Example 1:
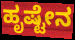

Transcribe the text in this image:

ಹೃಷ್ಟೇನ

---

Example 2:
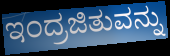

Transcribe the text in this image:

ಇಂದ್ರಜಿತುವನ್ನು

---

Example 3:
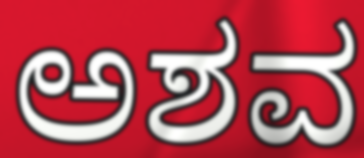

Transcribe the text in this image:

ಅಶವ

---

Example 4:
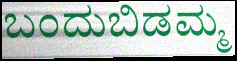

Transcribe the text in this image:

ಬಂದುಬಿಡಮ್ಮ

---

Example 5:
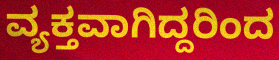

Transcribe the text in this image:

ವ್ಯಕ್ತವಾಗಿದ್ದರಿಂದ